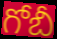
గోబీ